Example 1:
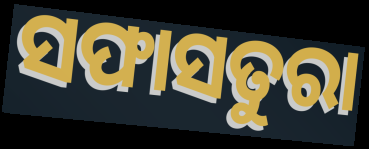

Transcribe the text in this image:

ସଫାସତୁରା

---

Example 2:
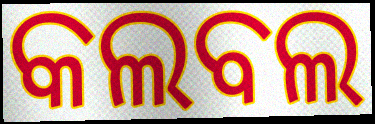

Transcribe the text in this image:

କଲବଲ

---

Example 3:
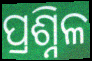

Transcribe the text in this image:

ପ୍ରଶ୍ନିଳ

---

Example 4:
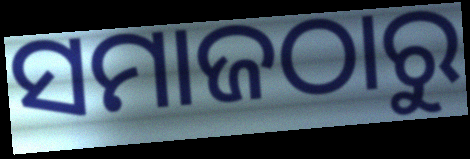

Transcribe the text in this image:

ସମାଜଠାରୁ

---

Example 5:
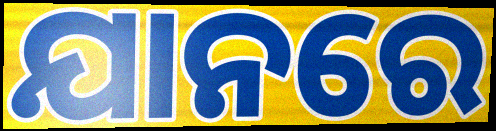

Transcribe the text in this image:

ଯାନରେ